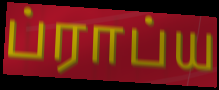
ப்ராப்ய